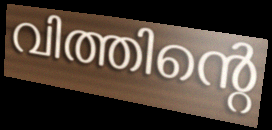
വിത്തിന്റെ